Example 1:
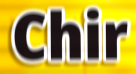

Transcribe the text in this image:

Chir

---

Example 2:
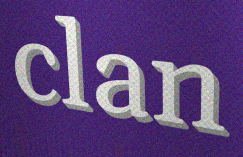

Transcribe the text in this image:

clan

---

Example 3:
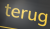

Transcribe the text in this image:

terug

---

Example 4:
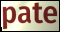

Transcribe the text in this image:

pate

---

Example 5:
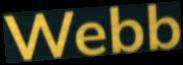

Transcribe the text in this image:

Webb